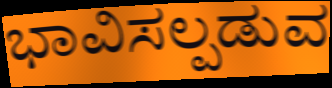
ಭಾವಿಸಲ್ಪಡುವ